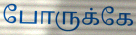
போருக்கே